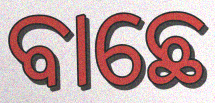
ବାଛେ